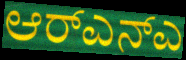
ಆರ್‌ಎನ್ಎ